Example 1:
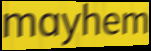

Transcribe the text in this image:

mayhem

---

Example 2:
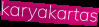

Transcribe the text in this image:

karyakartas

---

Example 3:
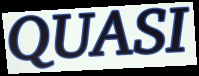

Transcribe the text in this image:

QUASI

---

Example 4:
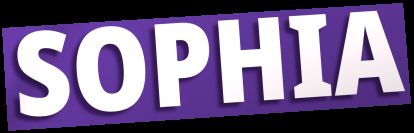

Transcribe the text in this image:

SOPHIA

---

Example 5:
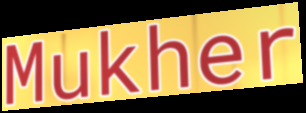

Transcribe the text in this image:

Mukher